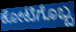
ಕೋಟಿಗೊಬ್ಬ